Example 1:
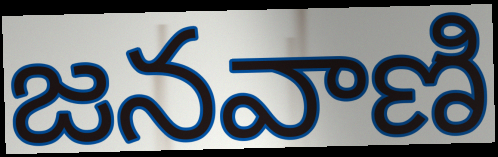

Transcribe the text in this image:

జనవాణి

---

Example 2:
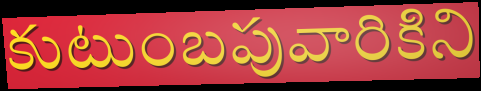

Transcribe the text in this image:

కుటుంబపువారికిని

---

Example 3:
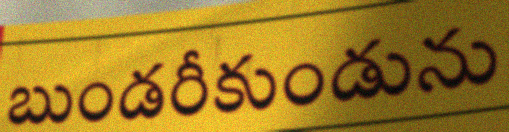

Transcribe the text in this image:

బుండరీకుండును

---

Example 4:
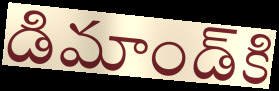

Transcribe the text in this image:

డిమాండ్‌కి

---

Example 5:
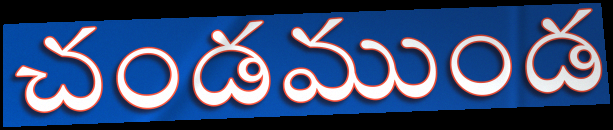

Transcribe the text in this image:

చండముండ